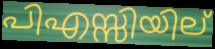
പിഎസ്സിയില്